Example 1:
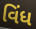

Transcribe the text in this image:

વિંધ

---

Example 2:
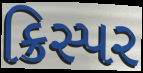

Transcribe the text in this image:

ક્રિસ્પર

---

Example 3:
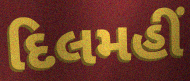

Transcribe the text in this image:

દિલમહીં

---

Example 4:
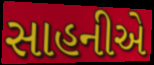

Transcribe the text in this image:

સાહનીએ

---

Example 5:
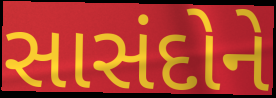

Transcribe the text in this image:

સાસંદોને